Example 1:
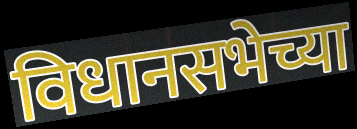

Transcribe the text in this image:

विधानसभेच्या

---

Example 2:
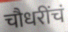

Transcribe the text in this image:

चौधरींचं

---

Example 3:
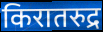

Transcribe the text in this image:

किरातरुद्र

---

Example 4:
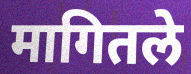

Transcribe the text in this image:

मागितले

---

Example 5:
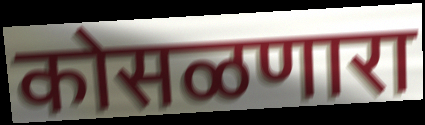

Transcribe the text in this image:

कोसळणारा